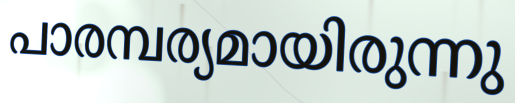
പാരമ്പര്യമായിരുന്നു